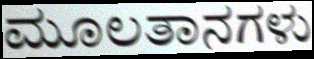
ಮೂಲತಾನಗಳು